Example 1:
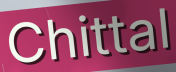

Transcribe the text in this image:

Chittal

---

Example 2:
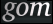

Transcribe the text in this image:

gom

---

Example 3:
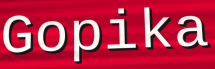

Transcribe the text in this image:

Gopika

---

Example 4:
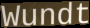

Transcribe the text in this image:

Wundt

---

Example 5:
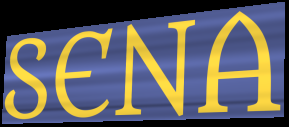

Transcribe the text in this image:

SENA